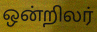
ஒன்றிலர்